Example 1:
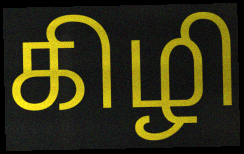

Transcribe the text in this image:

கிழி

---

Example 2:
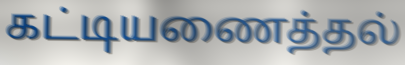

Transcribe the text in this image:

கட்டியணைத்தல்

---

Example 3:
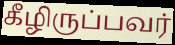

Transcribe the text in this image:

கீழிருப்பவர்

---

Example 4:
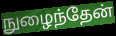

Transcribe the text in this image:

நுழைந்தேன்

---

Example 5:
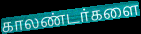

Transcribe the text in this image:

காலண்டர்களை